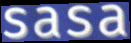
sasa